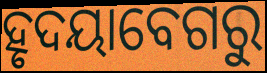
ହୃଦୟାବେଗରୁ